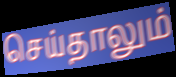
செய்தாலும்